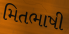
મિતભાષી